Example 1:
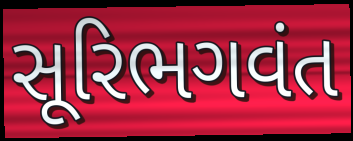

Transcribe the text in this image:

સૂરિભગવંત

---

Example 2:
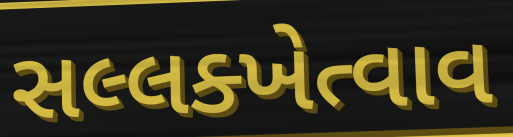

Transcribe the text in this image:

સલ્લક્ખેત્વાવ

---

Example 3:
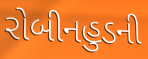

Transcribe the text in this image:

રોબીનહુડની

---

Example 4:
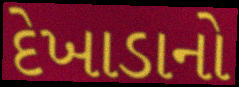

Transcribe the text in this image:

દેખાડાનો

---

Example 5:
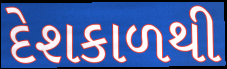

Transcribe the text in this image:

દેશકાળથી